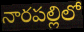
నారపల్లిలో